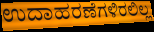
ಉದಾಹರಣೆಗಳಿರಲಿಲ್ಲ